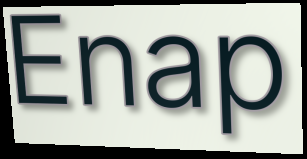
Enap